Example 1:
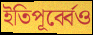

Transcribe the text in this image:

ইতিপূর্ব্বেও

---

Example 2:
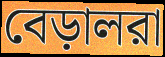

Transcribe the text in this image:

বেড়ালরা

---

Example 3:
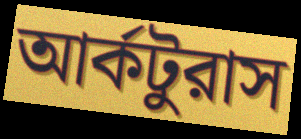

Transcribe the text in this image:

আর্কটুরাস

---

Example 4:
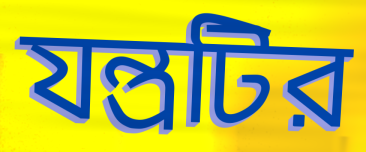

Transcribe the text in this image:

যন্ত্রটির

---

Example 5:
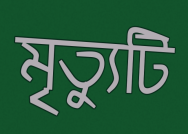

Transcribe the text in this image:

মৃত্যুটি